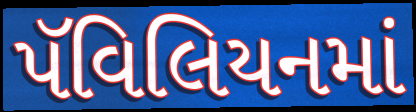
પૅવિલિયનમાં